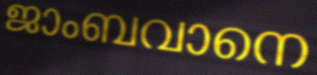
ജാംബവാനെ